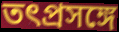
তৎপ্রসঙ্গে